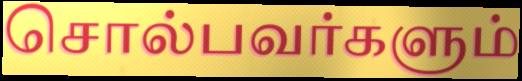
சொல்பவர்களும்